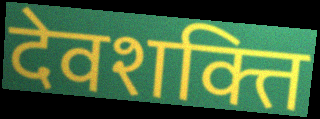
देवशक्ति